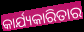
କାର୍ଯ୍ୟକାରିତାର